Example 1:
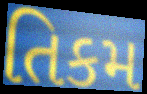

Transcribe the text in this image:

તિકમ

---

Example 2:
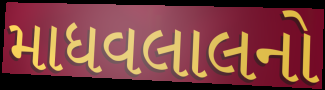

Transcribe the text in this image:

માધવલાલનો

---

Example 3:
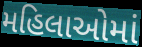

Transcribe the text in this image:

મહિલાઓમાં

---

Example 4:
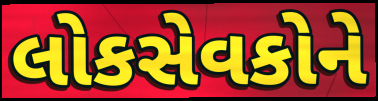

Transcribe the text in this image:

લોકસેવકોને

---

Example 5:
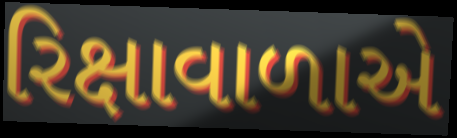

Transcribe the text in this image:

રિક્ષાવાળાએ